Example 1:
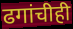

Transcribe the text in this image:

ढगांचीही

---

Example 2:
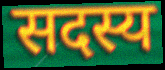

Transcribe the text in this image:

सदस्य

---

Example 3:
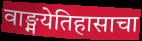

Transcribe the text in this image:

वाङ्मयेतिहासाचा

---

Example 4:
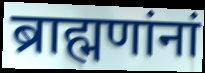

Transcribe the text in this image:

ब्राह्मणांनां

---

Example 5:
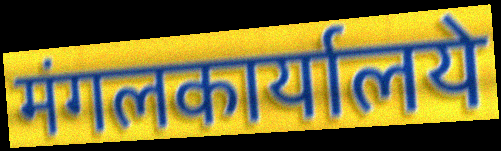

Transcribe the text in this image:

मंगलकार्यालये